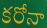
కరోనా